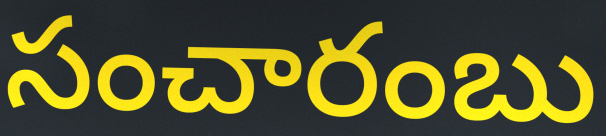
సంచారంబు